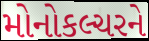
મોનોકલ્ચરને